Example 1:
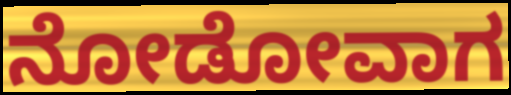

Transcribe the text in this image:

ನೋಡೋವಾಗ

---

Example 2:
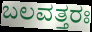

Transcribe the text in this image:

ಬಲವತ್ತರಃ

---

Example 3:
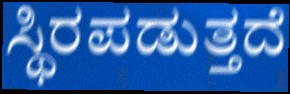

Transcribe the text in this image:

ಸ್ಥಿರಪಡುತ್ತದೆ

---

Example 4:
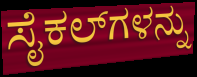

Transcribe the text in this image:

ಸೈಕಲ್‌ಗಳನ್ನು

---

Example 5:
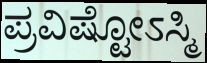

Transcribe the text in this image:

ಪ್ರವಿಷ್ಟೋಽಸ್ಮಿ